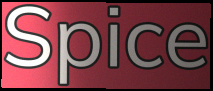
Spice